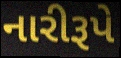
નારીરૂપે